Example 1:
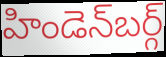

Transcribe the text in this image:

హిండెన్‌బర్గ్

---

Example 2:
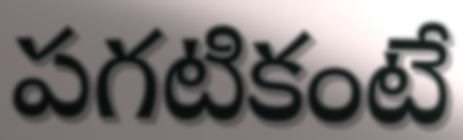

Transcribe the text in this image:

పగటికంటే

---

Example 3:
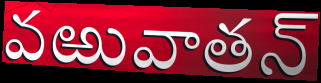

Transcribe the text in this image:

వఱువాతన్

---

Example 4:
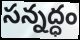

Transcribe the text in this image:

సన్నద్ధం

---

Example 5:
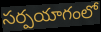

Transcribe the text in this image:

సర్పయాగంలో